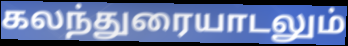
கலந்துரையாடலும்